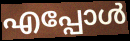
എപ്പോൾ